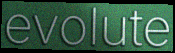
evolute